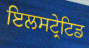
ਇਲਸਟ੍ਰੇਟਿਡ